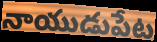
నాయుడుపేట